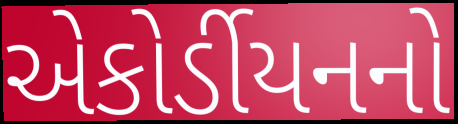
એકોર્ડીયનનો